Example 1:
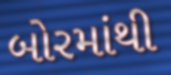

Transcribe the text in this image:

બોરમાંથી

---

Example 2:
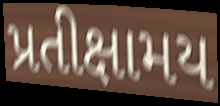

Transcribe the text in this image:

પ્રતીક્ષામય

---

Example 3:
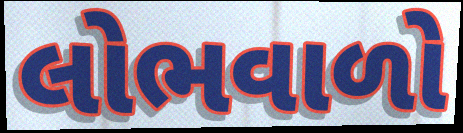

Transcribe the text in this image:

લોભવાળો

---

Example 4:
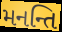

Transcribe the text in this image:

મનન્તિ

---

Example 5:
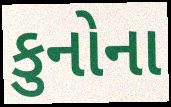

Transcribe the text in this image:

કુનોના